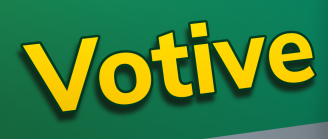
Votive